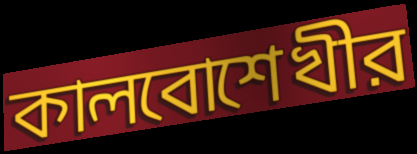
কালবোশেখীর